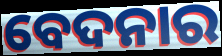
ବେଦନାର